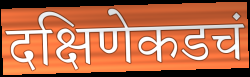
दक्षिणेकडचं